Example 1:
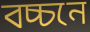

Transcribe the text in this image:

বচ্চনে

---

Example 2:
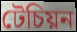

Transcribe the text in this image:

টেচিয়ন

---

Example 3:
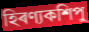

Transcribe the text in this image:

হিৰণ্যকশিপু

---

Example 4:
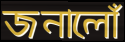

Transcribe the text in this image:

জনালোঁ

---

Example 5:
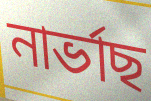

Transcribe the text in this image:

নাৰ্ভাছ